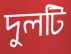
দুলটি